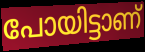
പോയിട്ടാണ്